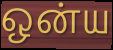
ஒன்ய